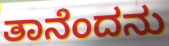
ತಾನೆಂದನು